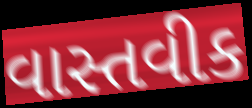
વાસ્તવીક